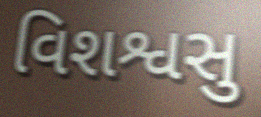
વિશશ્વસુ